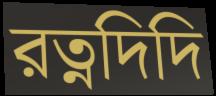
রত্নদিদি